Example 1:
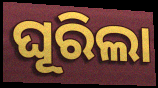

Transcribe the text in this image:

ଘୂରିଲା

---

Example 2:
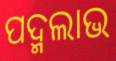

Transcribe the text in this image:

ପଦ୍ମଲାଭ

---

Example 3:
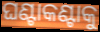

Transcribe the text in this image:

ଘଣ୍ଟାକଣ୍ଟାକୁ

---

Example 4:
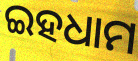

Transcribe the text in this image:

ଇହଧାମ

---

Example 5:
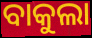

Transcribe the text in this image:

ବାକୁଲା